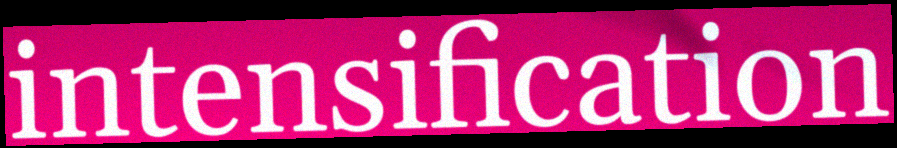
intensification